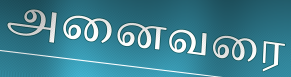
அனைவரை